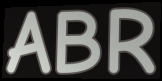
ABR